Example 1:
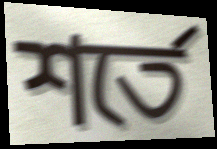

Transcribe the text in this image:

শর্তে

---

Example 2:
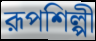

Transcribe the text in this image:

রূপশিল্পী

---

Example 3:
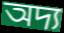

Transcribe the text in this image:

অদ্য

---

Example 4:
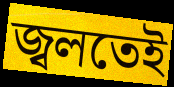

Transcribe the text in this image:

জ্বলতেই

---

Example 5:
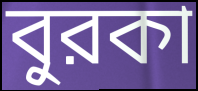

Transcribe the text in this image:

বুরকা